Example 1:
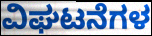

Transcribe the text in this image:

ವಿಘಟನೆಗಳ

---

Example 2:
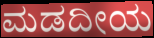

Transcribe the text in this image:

ಮಡದೀಯ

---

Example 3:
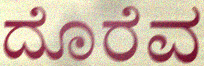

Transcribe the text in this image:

ದೊರೆವ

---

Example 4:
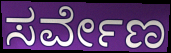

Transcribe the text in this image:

ಸರ್ವೇಣ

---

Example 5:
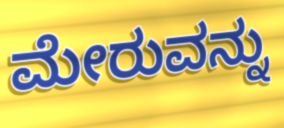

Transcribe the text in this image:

ಮೇರುವನ್ನು